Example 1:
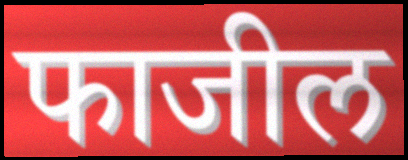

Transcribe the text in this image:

फाजील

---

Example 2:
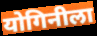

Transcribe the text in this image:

योगिनीला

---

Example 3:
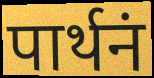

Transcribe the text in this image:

पार्थनं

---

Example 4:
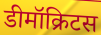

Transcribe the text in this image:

डीमॉक्रिटस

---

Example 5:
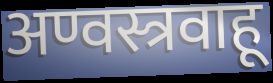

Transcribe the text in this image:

अण्वस्त्रवाहू